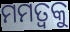
ମମତ୍ୱକୁ